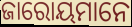
ଜାରୋୟମାନେ